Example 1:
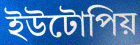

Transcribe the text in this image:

ইউটোপিয়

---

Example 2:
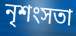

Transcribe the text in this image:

নৃশংসতা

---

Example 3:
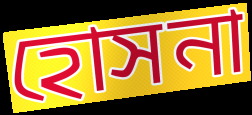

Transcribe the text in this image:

হোসনা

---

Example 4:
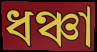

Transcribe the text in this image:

ধঞ্চা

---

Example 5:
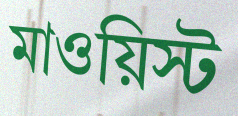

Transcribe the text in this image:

মাওয়িস্ট